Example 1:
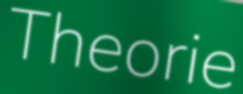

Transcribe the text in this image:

Theorie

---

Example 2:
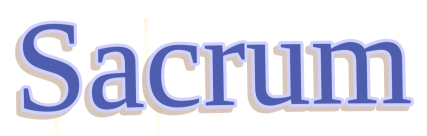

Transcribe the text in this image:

Sacrum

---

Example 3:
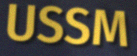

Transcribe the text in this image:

USSM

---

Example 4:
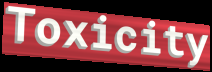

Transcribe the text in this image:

Toxicity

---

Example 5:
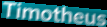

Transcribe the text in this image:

Timotheus